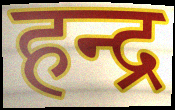
हन्द्र